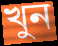
খুন